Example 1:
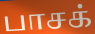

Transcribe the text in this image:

பாசக்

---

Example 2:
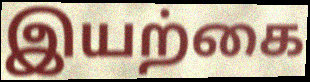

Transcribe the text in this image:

இயற்கை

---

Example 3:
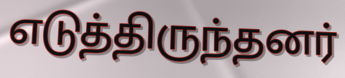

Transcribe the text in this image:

எடுத்திருந்தனர்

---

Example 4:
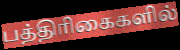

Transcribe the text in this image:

பத்திரிகைகளில்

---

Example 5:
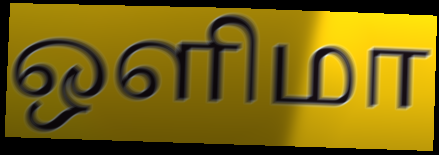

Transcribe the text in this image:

ஒளிமா